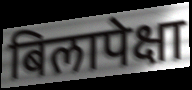
बिलापेक्षा